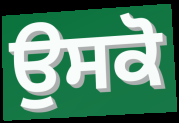
ਉਸਕੋ